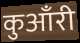
कुआँरी